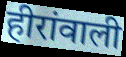
हीरांवाली